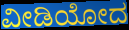
ವೀಡಿಯೋದ